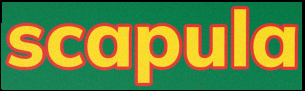
scapula